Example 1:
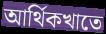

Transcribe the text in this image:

আর্থিকখাতে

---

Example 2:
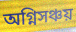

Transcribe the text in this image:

অগ্নিসঞ্চয়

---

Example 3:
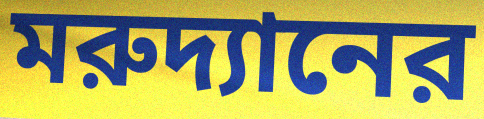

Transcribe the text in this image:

মরুদ্যানের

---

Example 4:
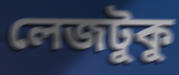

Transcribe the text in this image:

লেজটুকু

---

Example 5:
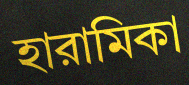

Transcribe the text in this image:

হারামিকা